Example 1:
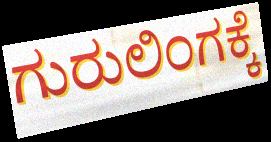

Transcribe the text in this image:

ಗುರುಲಿಂಗಕ್ಕೆ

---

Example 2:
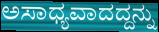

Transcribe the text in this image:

ಅಸಾಧ್ಯವಾದದ್ದನ್ನು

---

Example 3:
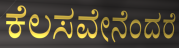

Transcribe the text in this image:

ಕೆಲಸವೇನೆಂದರೆ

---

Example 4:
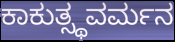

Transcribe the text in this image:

ಕಾಕುತ್ಸ್ಥವರ್ಮನ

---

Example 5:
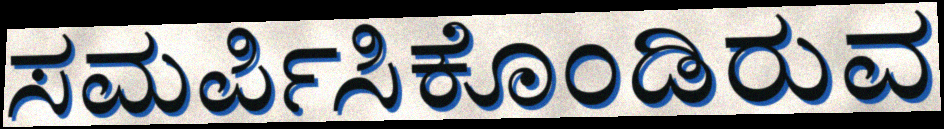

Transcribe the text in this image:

ಸಮರ್ಪಿಸಿಕೊಂಡಿರುವ